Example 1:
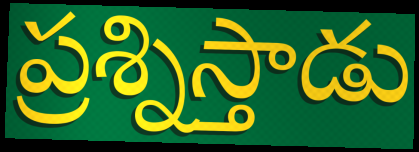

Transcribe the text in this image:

ప్రశ్నిస్తాడు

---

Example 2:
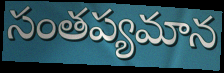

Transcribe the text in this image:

సంతప్యమాన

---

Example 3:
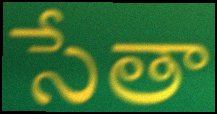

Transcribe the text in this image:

సేతా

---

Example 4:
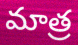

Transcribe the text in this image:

మాత్ర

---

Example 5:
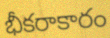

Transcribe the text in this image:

భీకరాకారం